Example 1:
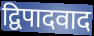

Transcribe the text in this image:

द्विपादवाद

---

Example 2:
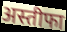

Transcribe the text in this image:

अस्तीफा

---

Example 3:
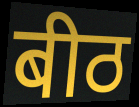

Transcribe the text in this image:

बीठ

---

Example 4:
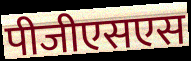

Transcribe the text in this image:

पीजीएसएस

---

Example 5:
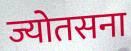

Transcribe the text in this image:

ज्योतसना